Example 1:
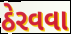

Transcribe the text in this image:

ઠેરવવા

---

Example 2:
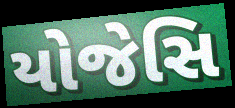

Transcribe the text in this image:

યોજેસિ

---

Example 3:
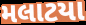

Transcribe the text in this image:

મલાટયા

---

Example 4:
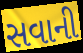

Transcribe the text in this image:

સવાની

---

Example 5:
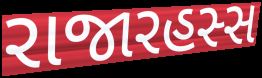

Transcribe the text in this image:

રાજારહસ્સ